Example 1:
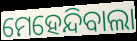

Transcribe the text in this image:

ମେହେନ୍ଦିବାଲା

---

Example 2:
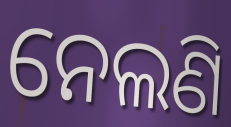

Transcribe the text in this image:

ନେଲଣି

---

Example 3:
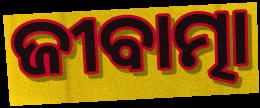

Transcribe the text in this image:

ଜୀବାତ୍ମା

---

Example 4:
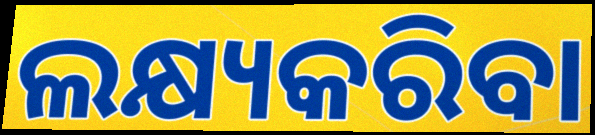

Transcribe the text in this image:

ଲକ୍ଷ୍ୟକରିବା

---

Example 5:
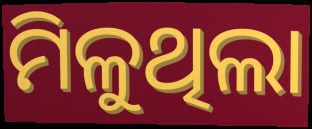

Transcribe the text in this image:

ମିଳୁଥିଲା